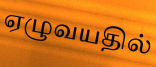
ஏழுவயதில்